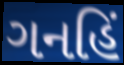
ગનહિં